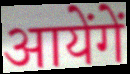
आयेंगें